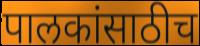
पालकांसाठीच